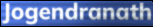
Jogendranath